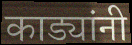
काड्यांनी